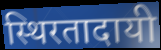
स्थिरतादायी